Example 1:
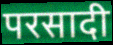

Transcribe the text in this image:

परसादी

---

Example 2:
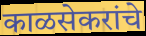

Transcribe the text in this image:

काळसेकरांचे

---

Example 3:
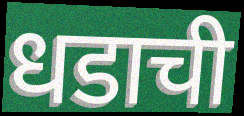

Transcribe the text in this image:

धडाची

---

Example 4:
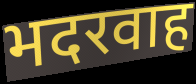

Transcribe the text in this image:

भदरवाह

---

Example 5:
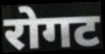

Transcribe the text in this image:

रोगट